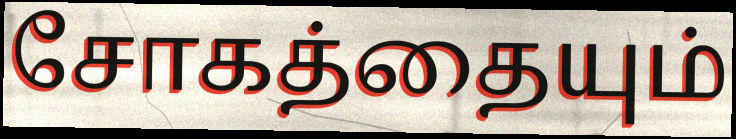
சோகத்தையும்